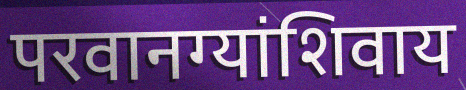
परवानग्यांशिवाय